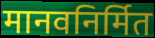
मानवनिर्मित